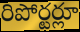
రిపోర్టర్లూ